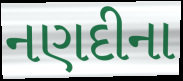
નણદીના